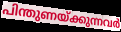
പിന്തുണയ്ക്കുന്നവർ